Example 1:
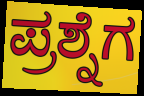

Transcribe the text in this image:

ಪ್ರಶ್ನೆಗ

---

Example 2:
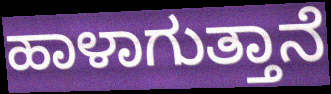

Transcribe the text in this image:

ಹಾಳಾಗುತ್ತಾನೆ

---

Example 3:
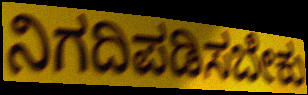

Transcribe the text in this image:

ನಿಗದಿಪಡಿಸಬೇಕು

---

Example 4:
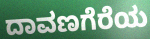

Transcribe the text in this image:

ದಾವಣಗೆರೆಯ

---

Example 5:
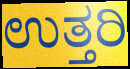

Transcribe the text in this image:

ಉತ್ತರಿ